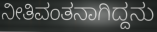
ನೀತಿವಂತನಾಗಿದ್ದನು